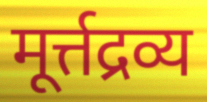
मूर्त्तद्रव्य